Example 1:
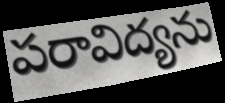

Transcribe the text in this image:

పరావిద్యను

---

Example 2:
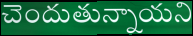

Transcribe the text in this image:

చెందుతున్నాయని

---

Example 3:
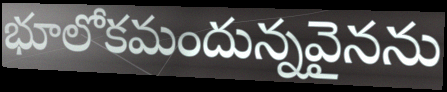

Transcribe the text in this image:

భూలోకమందున్నవైనను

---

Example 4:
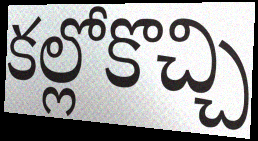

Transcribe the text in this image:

కల్లోకొచ్చి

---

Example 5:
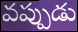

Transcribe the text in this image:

వప్పుడు